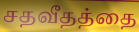
சதவீதத்தை